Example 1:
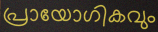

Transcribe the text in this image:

പ്രായോഗികവും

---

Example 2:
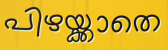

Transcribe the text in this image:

പിഴയ്ക്കാതെ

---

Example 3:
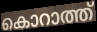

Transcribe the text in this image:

കൊറാത്ത്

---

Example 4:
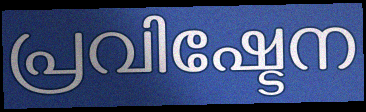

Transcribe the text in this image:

പ്രവിഷ്ടേന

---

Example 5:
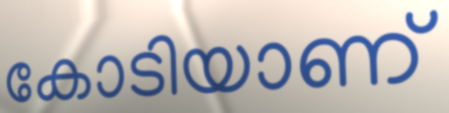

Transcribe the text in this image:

കോടിയാണ്